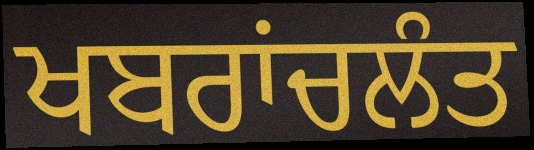
ਖਬਰਾਂਚਲੰਤ